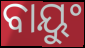
ବାୟୁଂ